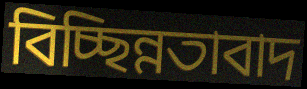
বিচ্ছিন্নতাবাদ